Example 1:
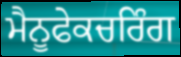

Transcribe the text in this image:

ਮੈਨੂਫੇਕਚਰਿੰਗ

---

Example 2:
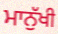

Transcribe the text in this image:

ਮਾਨੁੱਖੀ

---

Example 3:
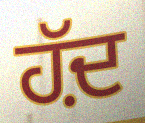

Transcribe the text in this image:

ਹ਼ੱਦ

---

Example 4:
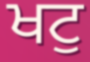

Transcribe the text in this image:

ਖਟੁ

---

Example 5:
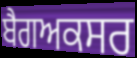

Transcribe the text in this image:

ਬੈਗਅਕਸਰ